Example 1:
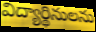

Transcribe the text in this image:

విద్యార్థినులను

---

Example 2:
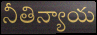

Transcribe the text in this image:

నీతిన్యాయ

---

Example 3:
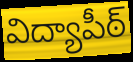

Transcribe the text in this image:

విద్యాపీఠ్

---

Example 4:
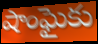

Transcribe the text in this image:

షాంఘైకు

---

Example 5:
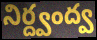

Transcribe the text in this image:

నిర్ద్వంద్వ